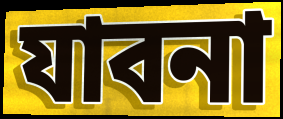
যাবনা